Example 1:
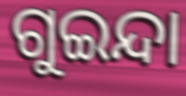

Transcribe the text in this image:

ଗୁଇନ୍ଦା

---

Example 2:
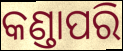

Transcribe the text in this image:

କଣ୍ଡାପରି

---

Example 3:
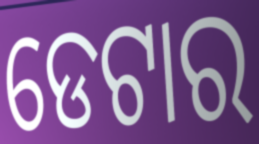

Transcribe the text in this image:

ଡେଟାର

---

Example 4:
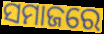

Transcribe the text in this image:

ସମାଜରେ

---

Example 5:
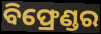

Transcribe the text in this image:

ବିଫ୍ରେଣ୍ଡର